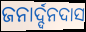
ଜନାର୍ଦ୍ଦନଦାସ